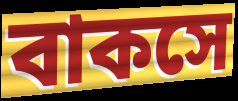
বাকসে